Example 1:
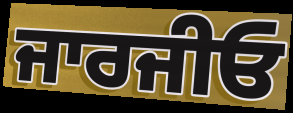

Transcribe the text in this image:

ਜਾਰਜੀਓ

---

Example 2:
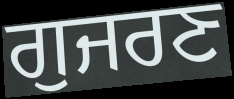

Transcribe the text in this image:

ਗੁਜਰਣ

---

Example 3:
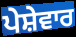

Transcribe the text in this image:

ਪੇਸ਼ੇਵਾਰ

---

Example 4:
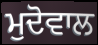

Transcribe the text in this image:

ਮੁਦੋਵਾਲ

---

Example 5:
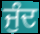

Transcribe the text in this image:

ਜੁੰਦ